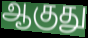
ஆகுது